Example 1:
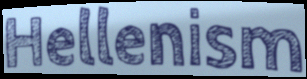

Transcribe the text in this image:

Hellenism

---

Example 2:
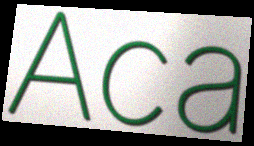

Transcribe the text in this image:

Aca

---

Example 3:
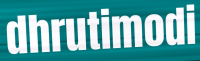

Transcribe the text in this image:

dhrutimodi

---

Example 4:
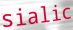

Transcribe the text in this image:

sialic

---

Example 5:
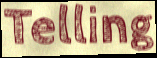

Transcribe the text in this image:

Telling